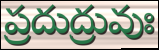
ప్రదుద్రువుః